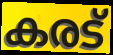
കരട്